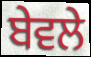
ਬੇਵਲੇ